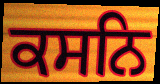
ਕਸਨਿ